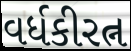
વર્ધકીરત્ન